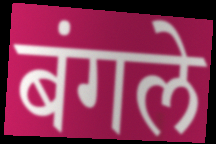
बंगले